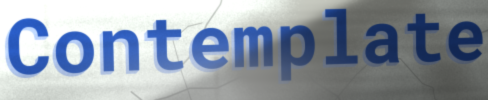
Contemplate